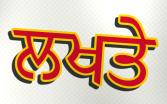
ਲਖਤੇ